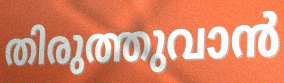
തിരുത്തുവാൻ